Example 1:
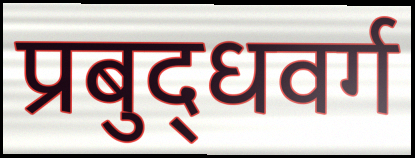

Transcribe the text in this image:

प्रबुद्धवर्ग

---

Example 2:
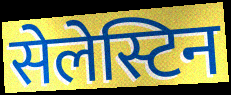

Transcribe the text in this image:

सेलेस्टिन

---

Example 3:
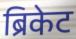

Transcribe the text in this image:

ब्रिकेट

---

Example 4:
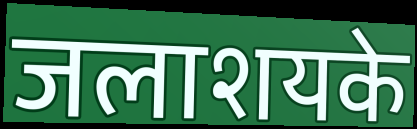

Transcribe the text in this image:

जलाशयके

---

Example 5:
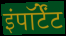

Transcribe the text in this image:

इंपॉर्टेंट